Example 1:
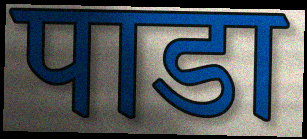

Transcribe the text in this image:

पाडा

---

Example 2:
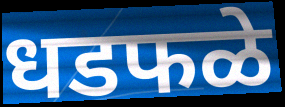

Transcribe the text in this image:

धडफळे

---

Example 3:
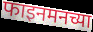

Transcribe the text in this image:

फाइनमनच्या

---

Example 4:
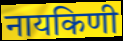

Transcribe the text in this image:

नायकिणी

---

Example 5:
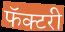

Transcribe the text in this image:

फॅक्टरी